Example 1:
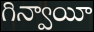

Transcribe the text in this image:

గిన్వాయీ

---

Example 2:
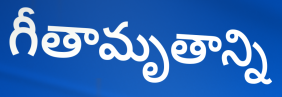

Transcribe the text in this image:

గీతామృతాన్ని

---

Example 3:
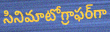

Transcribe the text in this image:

సినిమాటోగ్రాఫర్‌గా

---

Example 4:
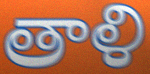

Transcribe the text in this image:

తాళి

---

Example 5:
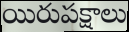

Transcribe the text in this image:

యిరుపక్షాలు